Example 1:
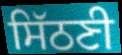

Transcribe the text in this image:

ਸਿੱਠਣੀ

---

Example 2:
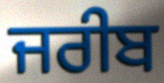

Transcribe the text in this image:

ਜਰੀਬ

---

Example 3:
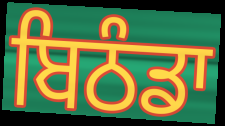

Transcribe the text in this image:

ਬਿਠੰਡਾ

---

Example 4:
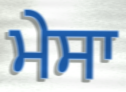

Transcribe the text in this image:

ਮੇਸਾ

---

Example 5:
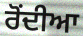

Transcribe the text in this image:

ਰੋਂਦੀਆ